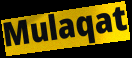
Mulaqat